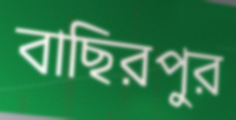
বাছিরপুর